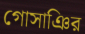
গোসাঞির